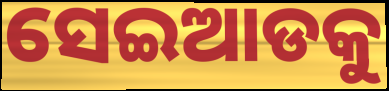
ସେଇଆଡକୁ